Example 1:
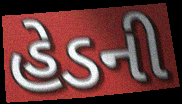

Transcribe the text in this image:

હેડની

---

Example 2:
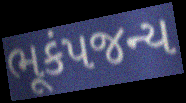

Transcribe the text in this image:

ભૂકંપજન્ય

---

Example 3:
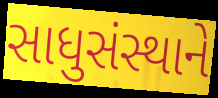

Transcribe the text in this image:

સાધુસંસ્થાને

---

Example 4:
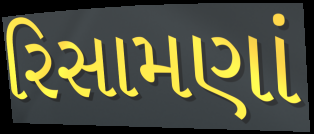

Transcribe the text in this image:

રિસામણાં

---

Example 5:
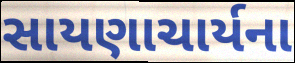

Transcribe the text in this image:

સાયણાચાર્યના